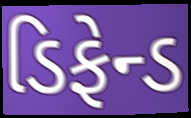
ડિફેન્ડ